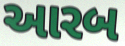
આરબ